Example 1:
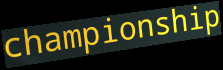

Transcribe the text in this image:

championship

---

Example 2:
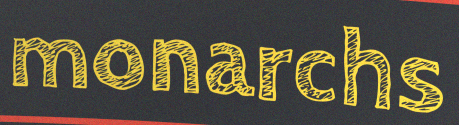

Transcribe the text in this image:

monarchs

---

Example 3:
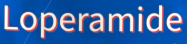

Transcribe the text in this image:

Loperamide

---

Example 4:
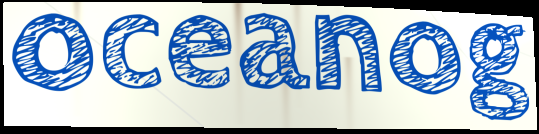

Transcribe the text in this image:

oceanog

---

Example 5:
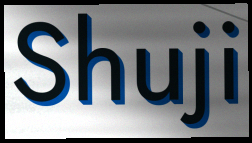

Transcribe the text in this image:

Shuji